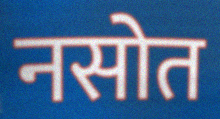
नसोत